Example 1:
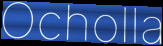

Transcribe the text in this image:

Ocholla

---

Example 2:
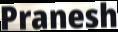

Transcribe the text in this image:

Pranesh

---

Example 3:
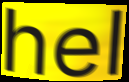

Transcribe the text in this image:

hel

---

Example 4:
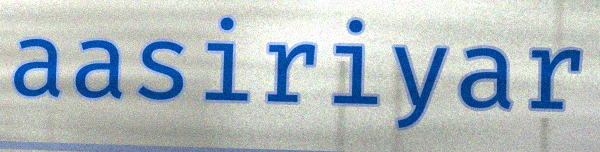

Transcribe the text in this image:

aasiriyar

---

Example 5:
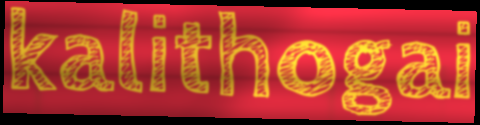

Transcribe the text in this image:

kalithogai